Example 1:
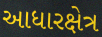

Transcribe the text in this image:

આધારક્ષેત્ર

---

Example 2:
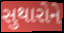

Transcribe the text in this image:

સુથારોને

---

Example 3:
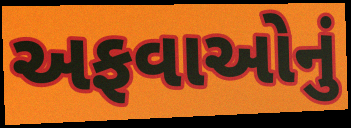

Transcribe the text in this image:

અફવાઓનું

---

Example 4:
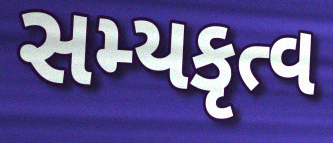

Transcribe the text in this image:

સમ્યકૃત્વ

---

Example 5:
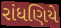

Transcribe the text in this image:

રાંધણિયે